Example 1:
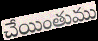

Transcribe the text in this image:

చేయింతుము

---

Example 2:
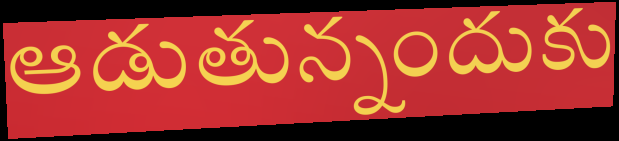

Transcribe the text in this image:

ఆడుతున్నందుకు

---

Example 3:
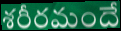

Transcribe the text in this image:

శరీరమందే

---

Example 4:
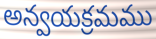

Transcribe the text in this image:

అన్వయక్రమము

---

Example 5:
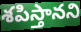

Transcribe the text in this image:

శపిస్తానని